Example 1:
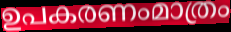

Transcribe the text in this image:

ഉപകരണംമാത്രം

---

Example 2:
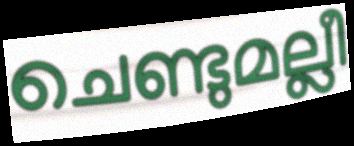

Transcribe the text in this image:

ചെണ്ടുമല്ലീ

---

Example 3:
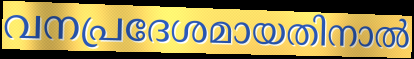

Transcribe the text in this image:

വനപ്രദേശമായതിനാൽ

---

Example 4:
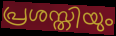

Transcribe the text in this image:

പ്രശസ്തിയും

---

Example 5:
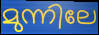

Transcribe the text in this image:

മുന്നിലേ